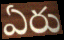
ఏరు